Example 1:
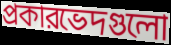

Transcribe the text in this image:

প্রকারভেদগুলো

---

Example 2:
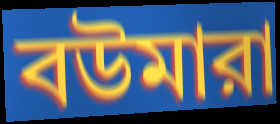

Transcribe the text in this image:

বউমারা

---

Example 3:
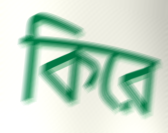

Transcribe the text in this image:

কিরে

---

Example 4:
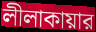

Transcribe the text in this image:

লীলাকায়ার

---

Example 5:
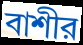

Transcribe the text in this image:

বাশীর